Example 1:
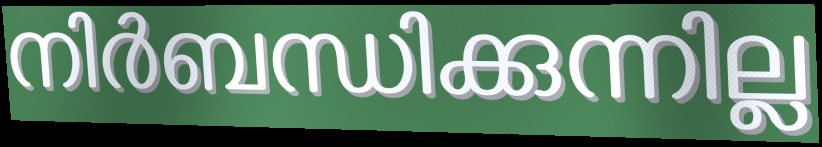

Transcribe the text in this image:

നിർബന്ധിക്കുന്നില്ല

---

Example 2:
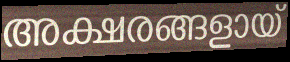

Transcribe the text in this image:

അക്ഷരങ്ങളായ്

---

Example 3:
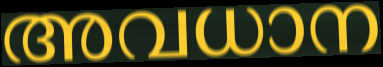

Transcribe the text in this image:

അവധാന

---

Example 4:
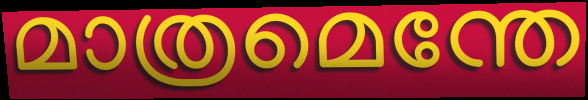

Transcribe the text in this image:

മാത്രമെന്തേ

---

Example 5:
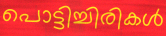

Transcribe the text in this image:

പൊട്ടിച്ചിരികൾ